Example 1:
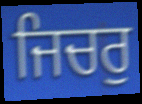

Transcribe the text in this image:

ਜਿਚਰੁ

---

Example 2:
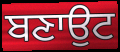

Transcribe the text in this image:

ਬਣਾਉਟ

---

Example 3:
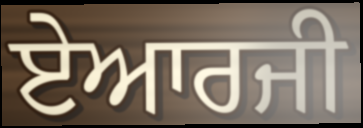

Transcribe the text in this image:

ਏਆਰਜੀ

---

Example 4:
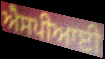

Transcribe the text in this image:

ਐਸਪੀਆਈ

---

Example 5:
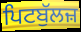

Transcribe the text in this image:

ਪਿਟਬੁੱਲਜ਼